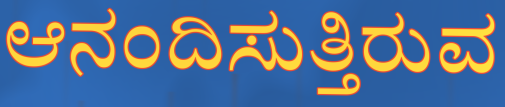
ಆನಂದಿಸುತ್ತಿರುವ